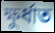
ক্ষুর্ধাত